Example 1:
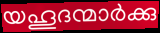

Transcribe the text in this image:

യഹൂദന്മാർക്കു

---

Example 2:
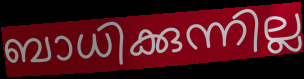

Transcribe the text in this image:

ബാധിക്കുന്നില്ല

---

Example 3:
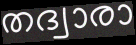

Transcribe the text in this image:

തദ്വാരാ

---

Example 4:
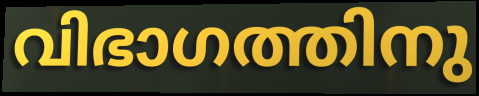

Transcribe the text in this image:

വിഭാഗത്തിനു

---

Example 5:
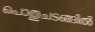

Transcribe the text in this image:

പൊതുചടങ്ങിൽ